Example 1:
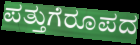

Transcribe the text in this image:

ಪತ್ತುಗೆರೂಪದ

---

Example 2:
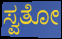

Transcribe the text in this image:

ಸ್ವತೋ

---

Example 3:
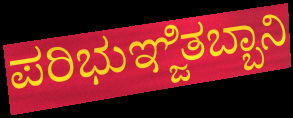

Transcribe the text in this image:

ಪರಿಭುಞ್ಜಿತಬ್ಬಾನಿ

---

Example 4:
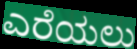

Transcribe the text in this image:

ಎರೆಯಲು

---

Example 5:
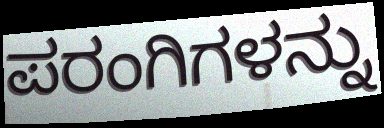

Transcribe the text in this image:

ಪರಂಗಿಗಳನ್ನು